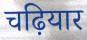
चढ़ियार